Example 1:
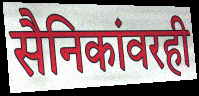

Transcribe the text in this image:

सैनिकांवरही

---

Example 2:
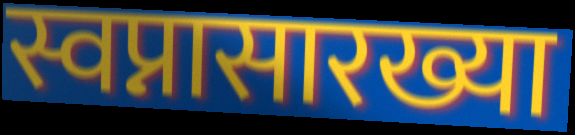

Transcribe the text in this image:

स्वप्नासारख्या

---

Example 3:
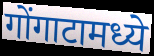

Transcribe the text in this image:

गोंगाटामध्ये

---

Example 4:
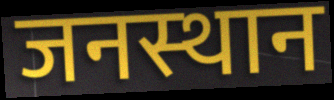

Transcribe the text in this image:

जनस्थान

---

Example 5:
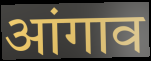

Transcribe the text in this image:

आंगाव